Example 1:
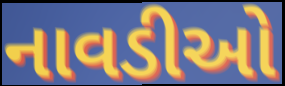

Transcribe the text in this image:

નાવડીઓ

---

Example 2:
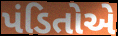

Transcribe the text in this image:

પંડિતોએ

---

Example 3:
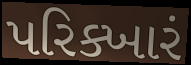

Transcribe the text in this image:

પરિક્ખારં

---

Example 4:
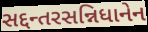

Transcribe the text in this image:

સદ્દન્તરસન્નિધાનેન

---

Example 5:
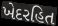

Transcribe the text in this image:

ખેદરહિત